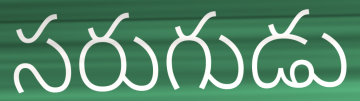
సరుగుడు